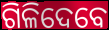
ଗିଳିଦେବେ